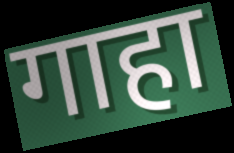
गाहा